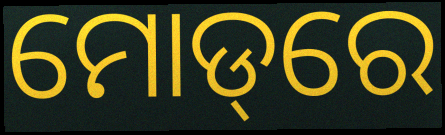
ମୋଡ୍‌ରେ